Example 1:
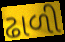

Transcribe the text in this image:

ઢાળી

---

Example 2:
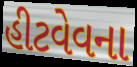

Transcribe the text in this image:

હીટવેવના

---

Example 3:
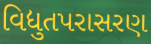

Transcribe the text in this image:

વિદ્યુતપરાસરણ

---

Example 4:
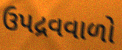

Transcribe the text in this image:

ઉપદ્રવવાળો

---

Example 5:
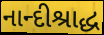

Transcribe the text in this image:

નાન્દીશ્રાદ્ધ